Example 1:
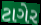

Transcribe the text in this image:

ટાગેર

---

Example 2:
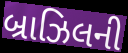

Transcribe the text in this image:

બ્રાઝિલની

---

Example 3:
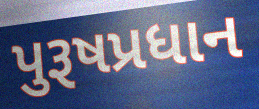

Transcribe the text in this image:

પુરૂષપ્રધાન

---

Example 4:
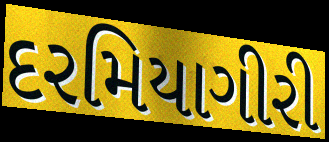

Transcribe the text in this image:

દરમિયાગીરી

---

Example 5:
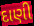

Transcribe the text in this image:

દાણી